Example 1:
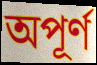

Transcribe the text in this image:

অপূৰ্ণ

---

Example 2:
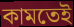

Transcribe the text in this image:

কামতেই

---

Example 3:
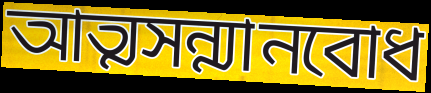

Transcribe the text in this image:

আত্মসন্মানবোধ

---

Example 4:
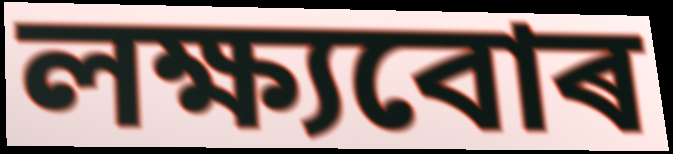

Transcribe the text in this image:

লক্ষ্যবোৰ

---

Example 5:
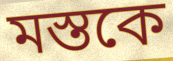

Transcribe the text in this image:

মস্তকে